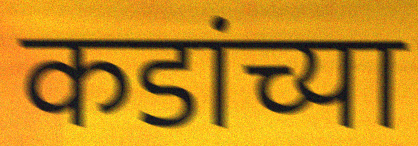
कडांच्या